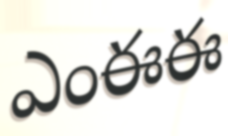
ఎంఈఈ